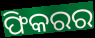
ଫିକରର